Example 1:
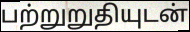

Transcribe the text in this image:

பற்றுறுதியுடன்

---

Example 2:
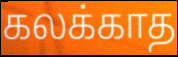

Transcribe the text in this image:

கலக்காத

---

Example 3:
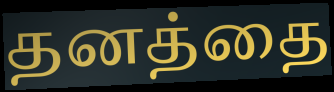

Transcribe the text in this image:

தனத்தை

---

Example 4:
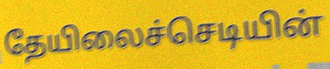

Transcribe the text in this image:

தேயிலைச்செடியின்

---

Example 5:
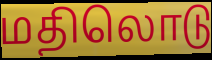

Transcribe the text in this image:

மதிலொடு